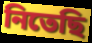
নিতেছি